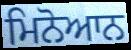
ਮਿਨੋਆਨ